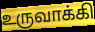
உருவாக்கி